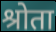
श्रोता